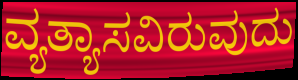
ವ್ಯತ್ಯಾಸವಿರುವುದು